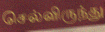
செல்விருந்து